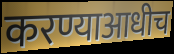
करण्याआधीच